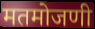
मतमोजणी